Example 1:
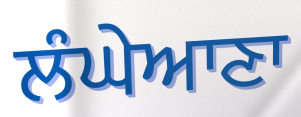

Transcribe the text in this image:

ਲੰਘੇਆਣਾ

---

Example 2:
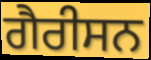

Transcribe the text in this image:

ਗੈਰੀਸਨ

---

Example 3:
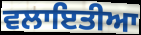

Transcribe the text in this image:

ਵਲਾਇਤੀਆ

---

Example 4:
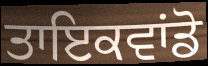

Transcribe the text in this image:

ਤਾਇਕਵਾਂਡੋ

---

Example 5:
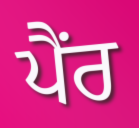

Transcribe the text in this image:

ਪੈਂਰ